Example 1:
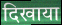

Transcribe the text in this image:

दिखाया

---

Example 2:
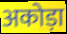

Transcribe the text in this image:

अकोड़ा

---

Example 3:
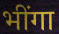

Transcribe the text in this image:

भींगा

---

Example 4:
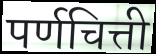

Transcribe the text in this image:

पर्णचित्ती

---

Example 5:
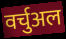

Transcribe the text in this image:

वर्चुअल